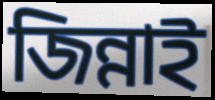
জিন্নাই